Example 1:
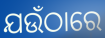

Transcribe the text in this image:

ଯଉଁଠାରେ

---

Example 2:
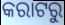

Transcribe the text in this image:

କରାଟରୁ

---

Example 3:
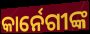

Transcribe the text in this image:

କାର୍ନେଗୀଙ୍କ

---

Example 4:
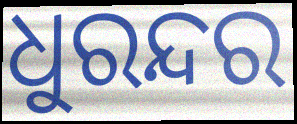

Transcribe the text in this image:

ଧୁରନ୍ଦର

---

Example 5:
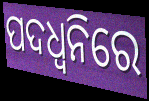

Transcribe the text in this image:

ପଦଧ୍ୱନିରେ